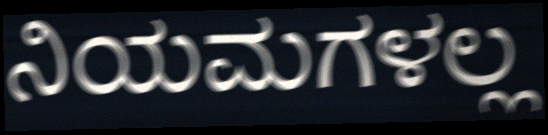
ನಿಯಮಗಳಲ್ಲ